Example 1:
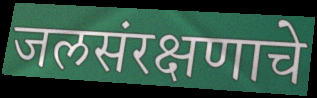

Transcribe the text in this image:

जलसंरक्षणाचे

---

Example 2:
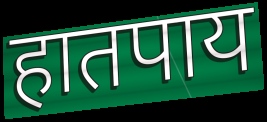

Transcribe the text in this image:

हातपाय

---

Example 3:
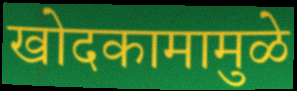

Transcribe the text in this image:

खोदकामामुळे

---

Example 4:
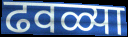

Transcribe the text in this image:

ढवळ्या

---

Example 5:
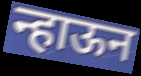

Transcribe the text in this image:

न्हाऊन